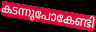
കടന്നുപോകേണ്ടി